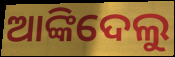
ଆଙ୍କିଦେଲୁ